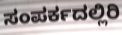
ಸಂಪರ್ಕದಲ್ಲಿರಿ